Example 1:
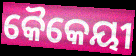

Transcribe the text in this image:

କୈକେୟୀ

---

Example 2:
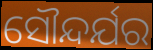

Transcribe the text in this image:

ସୌନ୍ଦର୍ଯର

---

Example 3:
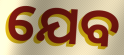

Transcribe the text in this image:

ଯେବ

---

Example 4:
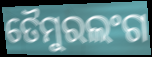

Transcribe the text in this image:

ତୈମୁରଲଂଗ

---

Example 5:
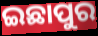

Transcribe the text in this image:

ଇଛାପୁର